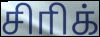
சிரிக்